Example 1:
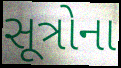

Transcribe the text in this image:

સૂત્રોના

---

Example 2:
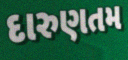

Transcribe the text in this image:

દારુણતમ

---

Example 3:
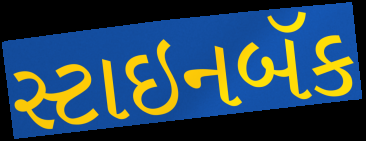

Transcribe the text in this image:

સ્ટાઇનબૅક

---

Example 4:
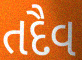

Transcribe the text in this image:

તદૈવ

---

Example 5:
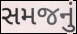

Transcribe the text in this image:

સમજનું